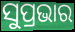
ସୁପ୍ରଭାର